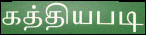
கத்தியபடி